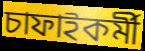
চাফাইকৰ্মী